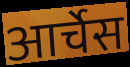
आर्चेस